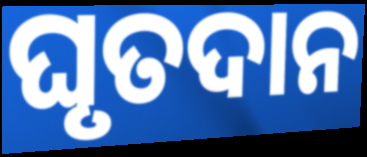
ଘୃତଦାନ